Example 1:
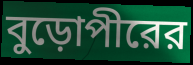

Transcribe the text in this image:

বুড়োপীরের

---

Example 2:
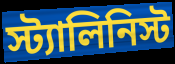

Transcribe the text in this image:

স্ট্যালিনিস্ট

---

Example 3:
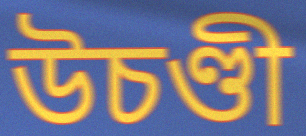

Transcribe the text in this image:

উচণ্ডী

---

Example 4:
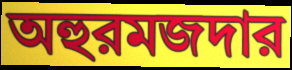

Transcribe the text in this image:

অহুরমজদার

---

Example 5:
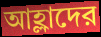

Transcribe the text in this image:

আহ্লাদের